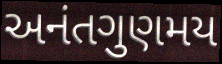
અનંતગુણમય